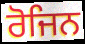
ਰੋਜਿਨ